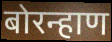
बोरन्हाण